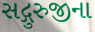
સદ્ગુરુજીના